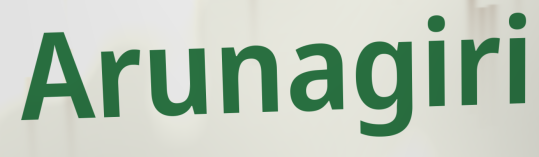
Arunagiri